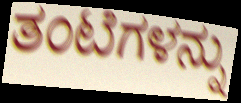
ತಂಟೆಗಳನ್ನು